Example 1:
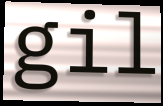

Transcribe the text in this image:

gil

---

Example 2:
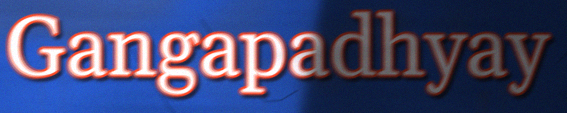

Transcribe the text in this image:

Gangapadhyay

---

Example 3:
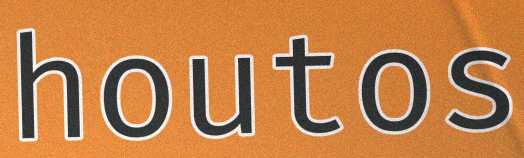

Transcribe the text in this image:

houtos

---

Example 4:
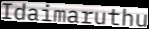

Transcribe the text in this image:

Idaimaruthu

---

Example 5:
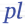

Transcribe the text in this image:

pl